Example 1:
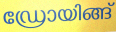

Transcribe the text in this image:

ഡ്രോയിങ്ങ്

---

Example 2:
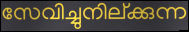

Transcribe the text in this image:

സേവിച്ചുനില്ക്കുന്ന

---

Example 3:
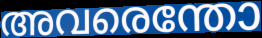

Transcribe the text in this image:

അവരെന്തോ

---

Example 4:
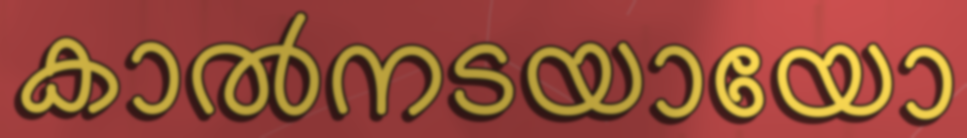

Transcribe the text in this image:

കാൽനടയായോ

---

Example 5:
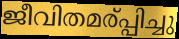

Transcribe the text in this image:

ജീവിതമര്പ്പിച്ചു